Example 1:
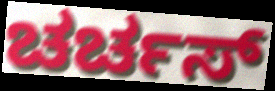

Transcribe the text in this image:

ಚರ್ಚಸ್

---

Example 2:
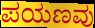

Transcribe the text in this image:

ಪಯಣವು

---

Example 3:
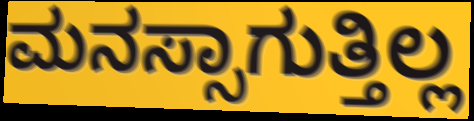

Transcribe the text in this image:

ಮನಸ್ಸಾಗುತ್ತಿಲ್ಲ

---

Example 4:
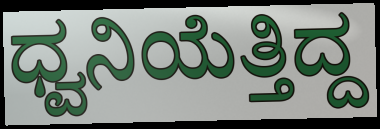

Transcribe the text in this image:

ಧ್ವನಿಯೆತ್ತಿದ್ದ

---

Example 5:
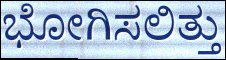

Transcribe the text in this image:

ಭೋಗಿಸಲಿತ್ತು